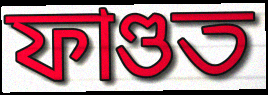
ফাণ্ডত